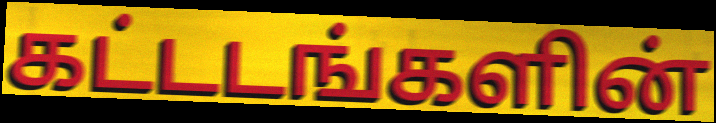
கட்டடங்களின்